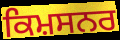
ਕਿਮ਼ਸਨਰ